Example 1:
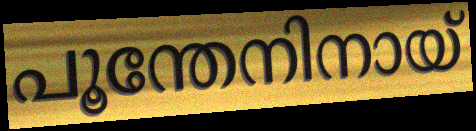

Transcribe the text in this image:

പൂന്തേനിനായ്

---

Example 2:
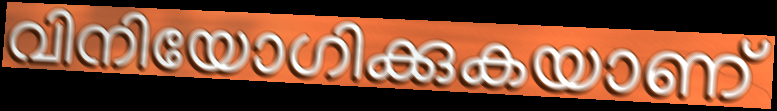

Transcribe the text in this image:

വിനിയോഗിക്കുകയാണ്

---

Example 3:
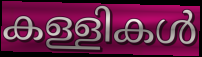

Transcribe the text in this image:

കള്ളികൾ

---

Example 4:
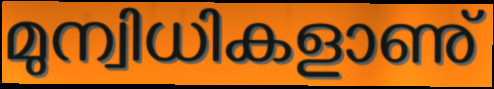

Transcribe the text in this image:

മുന്വിധികളാണു്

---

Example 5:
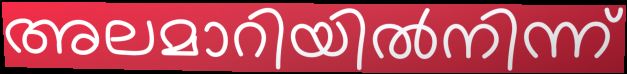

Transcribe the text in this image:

അലമാറിയിൽനിന്ന്